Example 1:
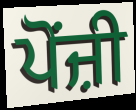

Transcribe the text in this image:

ਪੋਂਜ਼ੀ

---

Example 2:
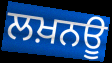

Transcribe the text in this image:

ਲਖ਼ਨਊ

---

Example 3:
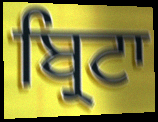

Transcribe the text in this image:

ਬ੍ਰਿਟਾ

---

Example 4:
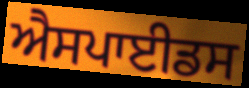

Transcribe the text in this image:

ਐਸਪਾਈਡਸ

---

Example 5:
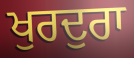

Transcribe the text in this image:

ਖੁਰਦੁਰਾ